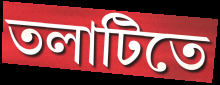
তলাটিতে